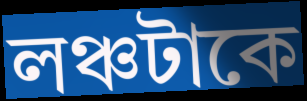
লঞ্চটাকে